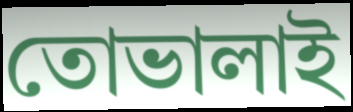
তোভালাই